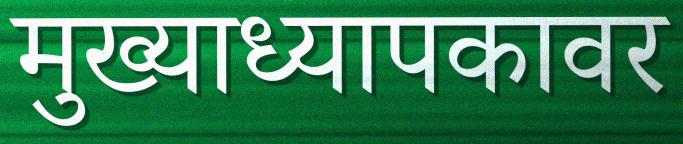
मुख्याध्यापकावर